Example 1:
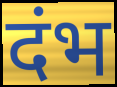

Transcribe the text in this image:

दंभ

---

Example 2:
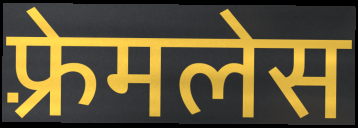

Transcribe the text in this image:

फ़्रेमलेस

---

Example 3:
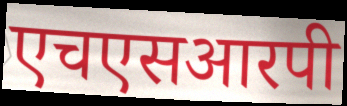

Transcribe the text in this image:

एचएसआरपी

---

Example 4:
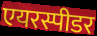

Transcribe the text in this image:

एयरस्पीडर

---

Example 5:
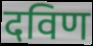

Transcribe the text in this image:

दविण